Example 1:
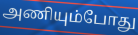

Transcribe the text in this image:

அணியும்போது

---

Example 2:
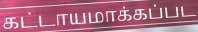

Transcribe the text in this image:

கட்டாயமாக்கப்பட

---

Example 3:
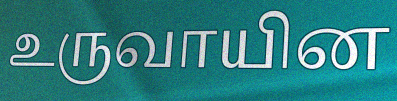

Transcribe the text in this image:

உருவாயின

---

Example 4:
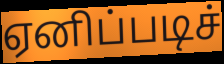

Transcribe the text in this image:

ஏனிப்படிச்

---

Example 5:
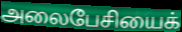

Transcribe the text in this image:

அலைபேசியைக்